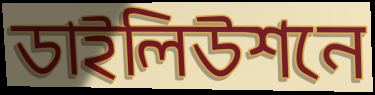
ডাইলিউশনে